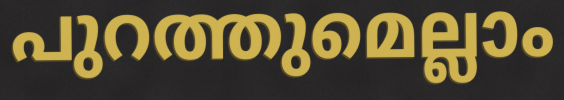
പുറത്തുമെല്ലാം